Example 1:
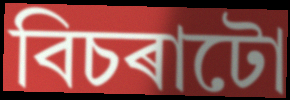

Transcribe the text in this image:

বিচৰাটো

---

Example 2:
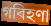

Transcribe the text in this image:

গৰিহণা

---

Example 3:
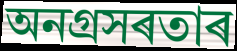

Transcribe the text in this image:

অনগ্ৰসৰতাৰ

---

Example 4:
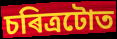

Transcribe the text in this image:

চৰিত্ৰটোত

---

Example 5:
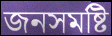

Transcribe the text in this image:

জনসমষ্টি